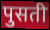
पुसती